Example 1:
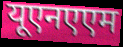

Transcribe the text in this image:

यूएनएएम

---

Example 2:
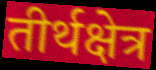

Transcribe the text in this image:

तीर्थक्षेत्र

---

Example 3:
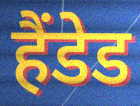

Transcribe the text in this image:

हैंडेड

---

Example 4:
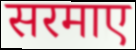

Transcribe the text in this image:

सरमाए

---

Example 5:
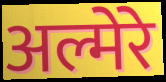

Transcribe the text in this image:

अल्मेरे